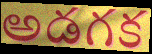
అడగక